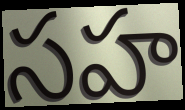
సహ